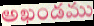
అఖండము